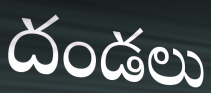
దండలు